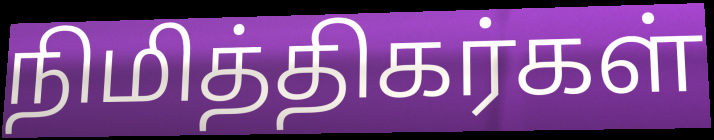
நிமித்திகர்கள்